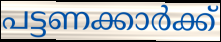
പട്ടണക്കാർക്ക്